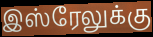
இஸ்ரேலுக்கு